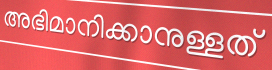
അഭിമാനിക്കാനുള്ളത്